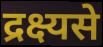
द्रक्ष्यसे